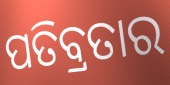
ପତିବ୍ରତାର